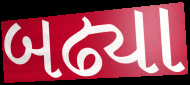
બઢ્યા